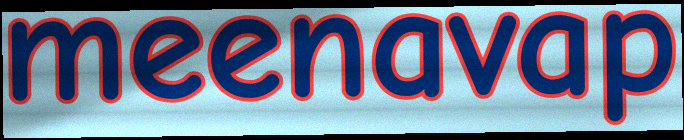
meenavap